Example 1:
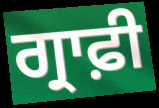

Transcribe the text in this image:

ਗ੍ਰਾਫ਼ੀ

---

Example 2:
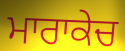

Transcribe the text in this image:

ਮਾਰਾਕੇਚ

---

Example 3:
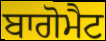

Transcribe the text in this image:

ਬਾਗੋਮੈਟ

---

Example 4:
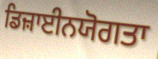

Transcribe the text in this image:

ਡਿਜ਼ਾਈਨਯੋਗਤਾ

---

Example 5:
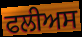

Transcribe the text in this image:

ਫਲੀਅਸ